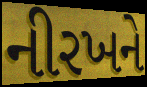
નીરખને